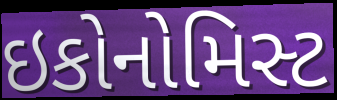
ઇકોનોમિસ્ટ